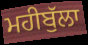
ਮਹੀਬੁੱਲਾ